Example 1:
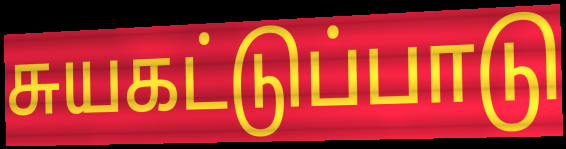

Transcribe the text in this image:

சுயகட்டுப்பாடு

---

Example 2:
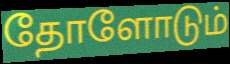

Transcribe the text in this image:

தோளோடும்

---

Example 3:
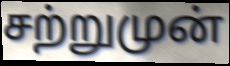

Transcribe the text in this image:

சற்றுமுன்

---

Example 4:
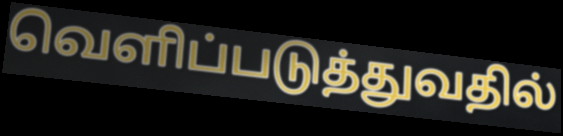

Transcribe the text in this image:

வெளிப்படுத்துவதில்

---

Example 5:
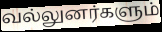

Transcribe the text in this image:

வல்லுனர்களும்